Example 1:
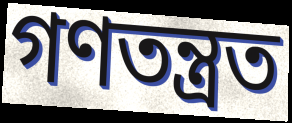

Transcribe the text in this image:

গণতন্ত্ৰত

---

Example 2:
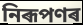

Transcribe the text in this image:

নিৰূপণৰ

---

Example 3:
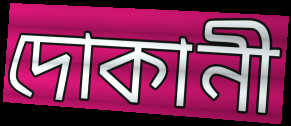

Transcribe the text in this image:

দোকানী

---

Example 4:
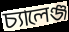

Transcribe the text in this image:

চ্যালেঞ্জ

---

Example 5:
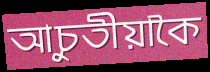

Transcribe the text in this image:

আচুতীয়াকৈ